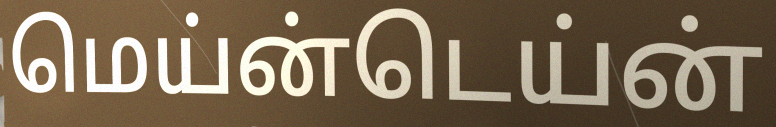
மெய்ன்டெய்ன்